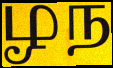
ழந